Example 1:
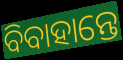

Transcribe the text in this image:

ବିବାହାନ୍ତେ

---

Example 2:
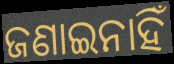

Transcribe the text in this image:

ଜଣାଇନାହିଁ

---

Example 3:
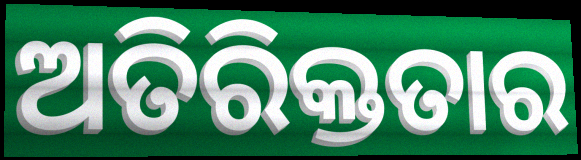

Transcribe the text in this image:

ଅତିରିକ୍ତତାର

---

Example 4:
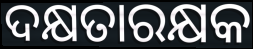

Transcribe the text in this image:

ଦକ୍ଷତାରକ୍ଷକ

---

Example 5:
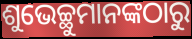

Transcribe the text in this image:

ଶୁଭେଚ୍ଛୁମାନଙ୍କଠାରୁ